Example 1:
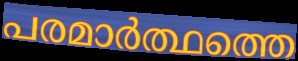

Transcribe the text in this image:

പരമാർത്ഥത്തെ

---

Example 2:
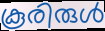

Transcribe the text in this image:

കൂരിരുൾ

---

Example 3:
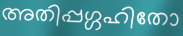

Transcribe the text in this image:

അതിപ്പഗ്ഗഹിതോ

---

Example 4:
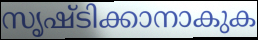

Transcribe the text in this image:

സൃഷ്ടിക്കാനാകുക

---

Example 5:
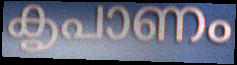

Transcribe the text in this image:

കൃപാണം